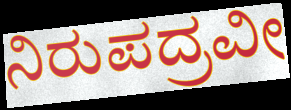
ನಿರುಪದ್ರವೀ